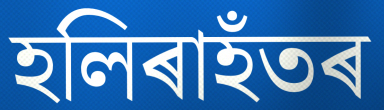
হলিৰাহঁতৰ